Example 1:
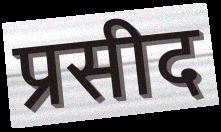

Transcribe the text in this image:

प्रसीद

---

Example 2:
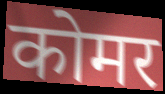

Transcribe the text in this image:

कोमर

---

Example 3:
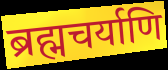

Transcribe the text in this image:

ब्रह्मचर्याणि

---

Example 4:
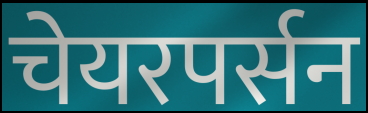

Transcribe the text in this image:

चेयरपर्सन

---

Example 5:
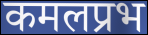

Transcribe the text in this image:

कमलप्रभ